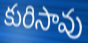
కురిసావు